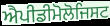
ਐਪੀਡੀਮੋਲੋਜਿਸਟ